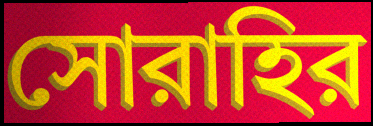
সোরাহির